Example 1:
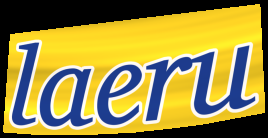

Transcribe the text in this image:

laeru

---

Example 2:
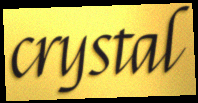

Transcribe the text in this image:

crystal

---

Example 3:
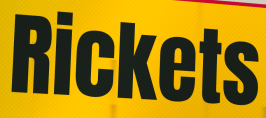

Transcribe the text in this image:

Rickets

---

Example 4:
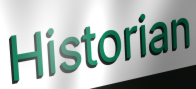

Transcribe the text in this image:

Historian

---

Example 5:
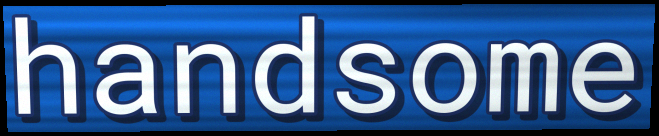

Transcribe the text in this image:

handsome